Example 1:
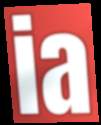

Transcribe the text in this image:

ia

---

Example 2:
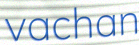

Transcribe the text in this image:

vachan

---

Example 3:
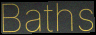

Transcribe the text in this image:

Baths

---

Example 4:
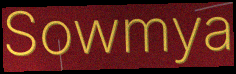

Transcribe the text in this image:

Sowmya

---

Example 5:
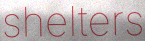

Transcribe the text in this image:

shelters